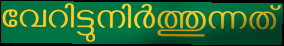
വേറിട്ടുനിർത്തുന്നത്